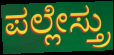
ಪಲ್ಲೇಸ್ತ್ರು